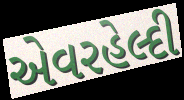
એવરહેલ્દી